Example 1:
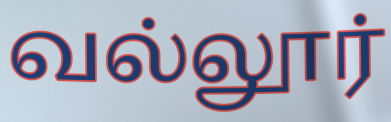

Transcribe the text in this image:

வல்லூர்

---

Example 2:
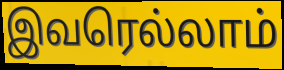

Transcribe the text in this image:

இவரெல்லாம்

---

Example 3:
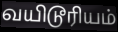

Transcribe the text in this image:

வயிடூரியம்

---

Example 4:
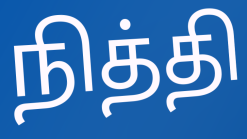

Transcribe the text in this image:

நித்தி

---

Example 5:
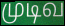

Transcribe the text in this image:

முடிவ